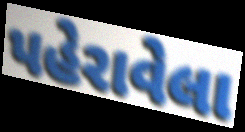
પહેરાવેલા